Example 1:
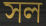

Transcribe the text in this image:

সল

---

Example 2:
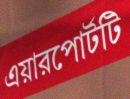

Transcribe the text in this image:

এয়ারপোর্টটি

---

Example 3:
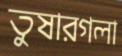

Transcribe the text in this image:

তুষারগলা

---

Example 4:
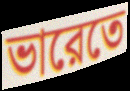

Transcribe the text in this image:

ভারেতে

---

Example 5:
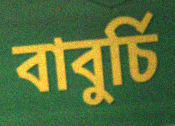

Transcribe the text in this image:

বাবুর্চি